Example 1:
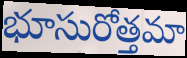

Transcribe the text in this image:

భూసురోత్తమా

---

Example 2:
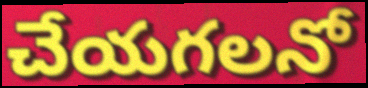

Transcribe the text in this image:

చేయగలనో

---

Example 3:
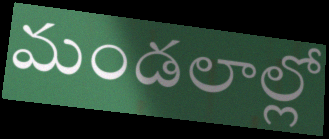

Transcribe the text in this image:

మండలాల్లో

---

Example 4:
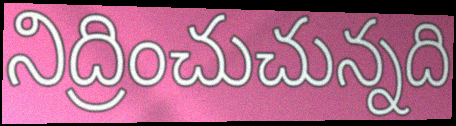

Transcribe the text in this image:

నిద్రించుచున్నది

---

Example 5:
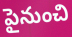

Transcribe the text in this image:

పైనుంచి